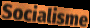
Socialisme